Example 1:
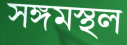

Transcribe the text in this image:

সঙ্গমস্থল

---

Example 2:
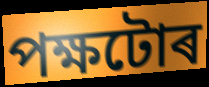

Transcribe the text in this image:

পক্ষটোৰ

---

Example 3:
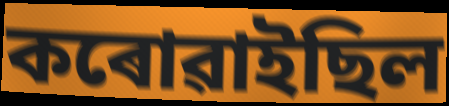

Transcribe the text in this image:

কৰোৱাইছিল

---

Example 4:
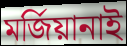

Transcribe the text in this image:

মৰ্জিয়ানাই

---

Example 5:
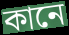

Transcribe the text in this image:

কানে